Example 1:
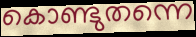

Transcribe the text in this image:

കൊണ്ടുതന്നെ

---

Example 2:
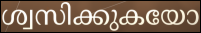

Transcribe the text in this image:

ശ്വസിക്കുകയോ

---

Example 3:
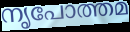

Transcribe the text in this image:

നൃപോത്തമ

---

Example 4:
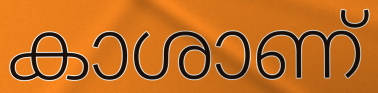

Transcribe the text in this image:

കാശാണ്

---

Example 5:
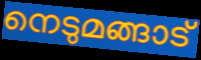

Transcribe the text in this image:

നെടുമങ്ങാട്